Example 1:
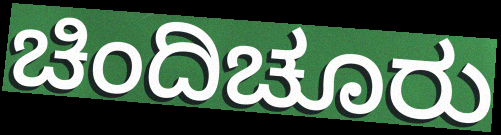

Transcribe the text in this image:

ಚಿಂದಿಚೂರು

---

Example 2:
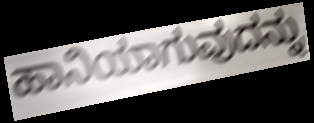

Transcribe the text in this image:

ಹಾನಿಯಾಗುವುದನ್ನು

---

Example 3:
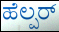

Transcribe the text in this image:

ಹೆಲ್ಪರ್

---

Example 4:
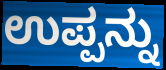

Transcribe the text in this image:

ಉಪ್ಪನ್ನು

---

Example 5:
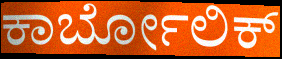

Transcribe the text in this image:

ಕಾರ್ಬೋಲಿಕ್